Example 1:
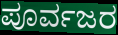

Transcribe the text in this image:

ಪೂರ್ವಜರ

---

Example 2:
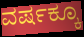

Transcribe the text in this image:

ವರ್ಷಕ್ಕೂ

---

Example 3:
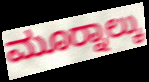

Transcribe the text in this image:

ಮೂರ‍್ನಾಲ್ಕು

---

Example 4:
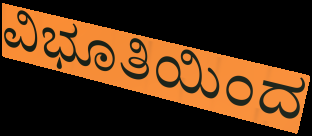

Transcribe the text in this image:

ವಿಭೂತಿಯಿಂದ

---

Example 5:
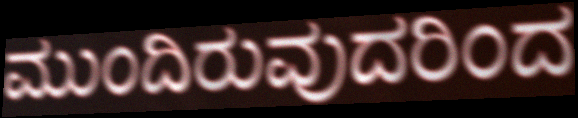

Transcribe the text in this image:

ಮುಂದಿರುವುದರಿಂದ